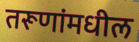
तरूणांमधील